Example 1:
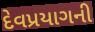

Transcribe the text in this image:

દેવપ્રયાગની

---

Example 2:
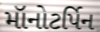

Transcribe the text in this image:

મૉનોટર્પિન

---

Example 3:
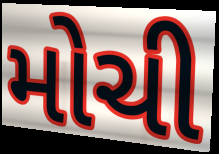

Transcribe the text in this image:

મોચી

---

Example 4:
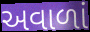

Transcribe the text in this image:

અવાળાં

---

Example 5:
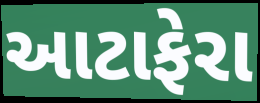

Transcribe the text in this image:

આટાફેરા